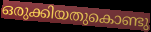
ഒരുക്കിയതുകൊണ്ടു